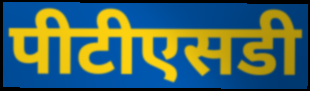
पीटीएसडी